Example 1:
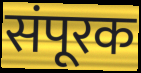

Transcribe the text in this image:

संपूरक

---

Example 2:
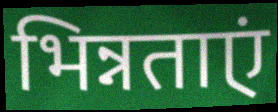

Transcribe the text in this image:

भिन्नताएं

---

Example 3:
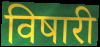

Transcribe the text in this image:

विषारी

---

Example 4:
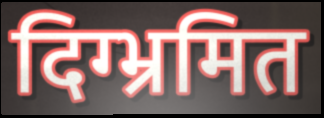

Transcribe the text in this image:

दिग्भ्रमित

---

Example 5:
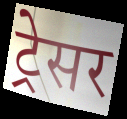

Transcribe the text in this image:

ट्रेसर